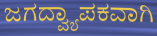
ಜಗದ್ವ್ಯಾಪಕವಾಗಿ